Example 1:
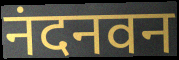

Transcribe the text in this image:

नंदनवन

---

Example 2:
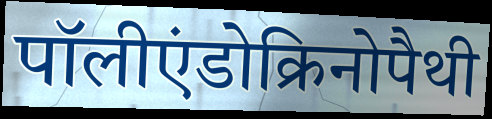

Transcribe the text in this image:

पॉलीएंडोक्रिनोपैथी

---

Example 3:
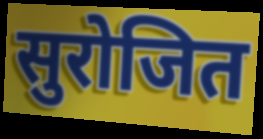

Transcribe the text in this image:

सुरोजित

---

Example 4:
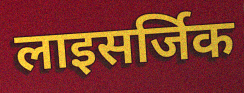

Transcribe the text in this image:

लाइसर्जिक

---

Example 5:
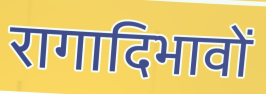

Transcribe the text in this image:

रागादिभावों